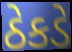
ઠેકડે